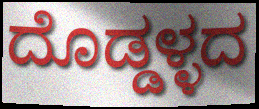
ದೊಡ್ಡಳ್ಳದ